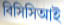
বিসিসিআই